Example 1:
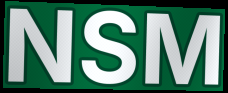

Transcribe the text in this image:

NSM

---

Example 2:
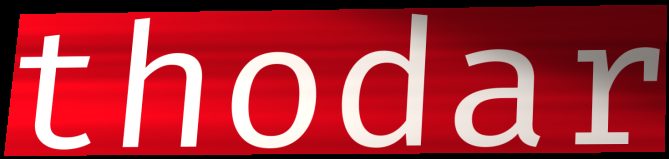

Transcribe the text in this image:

thodar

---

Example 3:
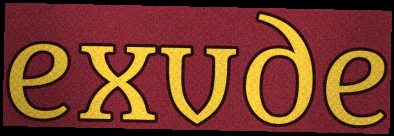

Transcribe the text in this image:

exude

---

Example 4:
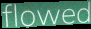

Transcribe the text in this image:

flowed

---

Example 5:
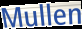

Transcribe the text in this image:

Mullen